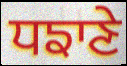
ਧਙਾਣੇ